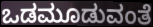
ಒಡಮೂಡುವಂತೆ